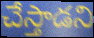
చేస్తాడని